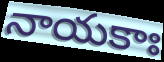
నాయకాః